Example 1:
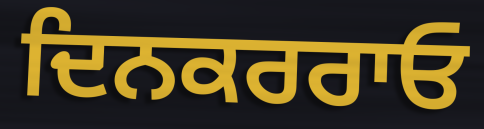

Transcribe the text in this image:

ਦਿਨਕਰਰਾਓ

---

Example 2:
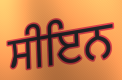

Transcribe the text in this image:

ਸੀਇਨ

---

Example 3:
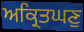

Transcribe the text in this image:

ਅਕ੍ਰਿਤਘਣੁ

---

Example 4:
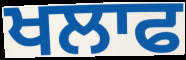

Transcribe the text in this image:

ਖਲਾਫ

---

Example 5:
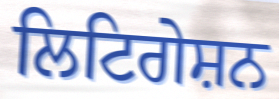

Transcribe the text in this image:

ਲਿਟਿਗੇਸ਼ਨ